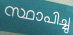
സ്ഥാപിച്ചു